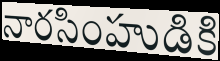
నారసింహుడికి